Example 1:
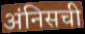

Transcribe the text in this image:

अंनिसची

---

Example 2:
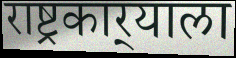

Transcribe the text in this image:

राष्ट्रकार्याला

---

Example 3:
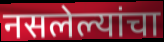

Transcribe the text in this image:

नसलेल्यांचा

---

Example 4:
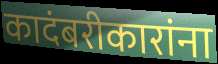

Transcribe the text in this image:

कादंबरीकारांना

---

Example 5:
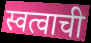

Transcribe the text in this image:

स्वत्वाची